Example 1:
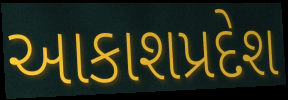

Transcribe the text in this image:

આકાશપ્રદેશ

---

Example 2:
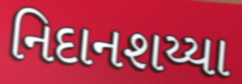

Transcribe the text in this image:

નિદાનશય્યા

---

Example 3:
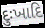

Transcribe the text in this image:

દુઃખાદિ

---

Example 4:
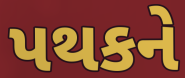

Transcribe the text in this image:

પથકને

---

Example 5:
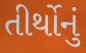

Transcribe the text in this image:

તીર્થોનું